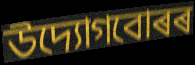
উদ্যোগবোৰৰ